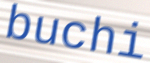
buchi